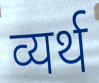
व्यर्थ